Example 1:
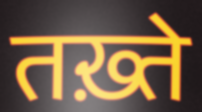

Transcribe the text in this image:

तख़्ते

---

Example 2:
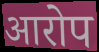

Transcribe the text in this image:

आरोप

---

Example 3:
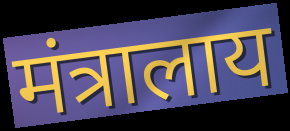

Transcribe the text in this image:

मंत्रालाय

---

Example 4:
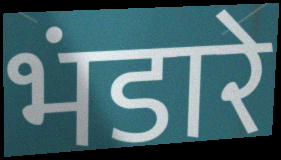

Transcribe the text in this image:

भंडारे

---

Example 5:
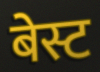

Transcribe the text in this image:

बेस्ट